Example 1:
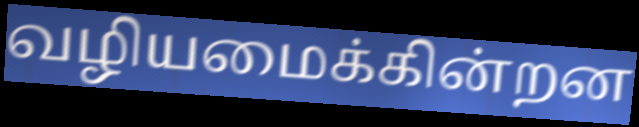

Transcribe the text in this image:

வழியமைக்கின்றன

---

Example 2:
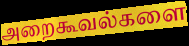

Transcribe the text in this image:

அறைகூவல்களை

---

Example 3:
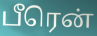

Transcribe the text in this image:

பீரென்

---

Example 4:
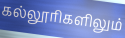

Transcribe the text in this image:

கல்லூரிகளிலும்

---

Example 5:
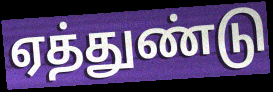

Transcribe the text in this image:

ஏத்துண்டு